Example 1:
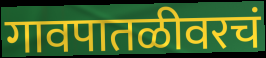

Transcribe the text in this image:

गावपातळीवरचं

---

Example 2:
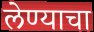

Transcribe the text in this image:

लेण्याचा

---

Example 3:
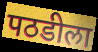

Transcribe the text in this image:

पठडीला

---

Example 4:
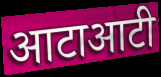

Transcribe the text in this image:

आटाआटी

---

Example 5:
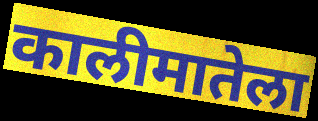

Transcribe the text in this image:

कालीमातेला